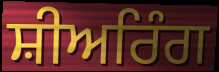
ਸ਼ੀਅਰਿੰਗ